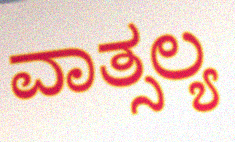
ವಾತ್ಸಲ್ಯ